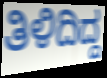
ತಿಳಿದಿದ್ದ